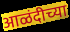
आळंदीच्या